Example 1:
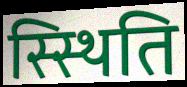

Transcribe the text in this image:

स्स्थिति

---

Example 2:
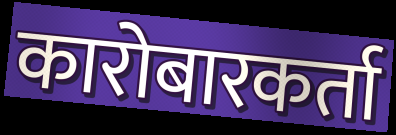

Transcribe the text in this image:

कारोबारकर्ता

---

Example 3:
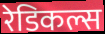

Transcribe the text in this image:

रेडिकल्स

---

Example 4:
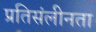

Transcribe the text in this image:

प्रतिसंलीनता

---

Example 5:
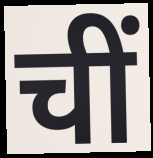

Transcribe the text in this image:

चीं